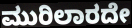
ಮುರಿಲಾರದೇ